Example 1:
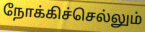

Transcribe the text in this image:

நோக்கிச்செல்லும்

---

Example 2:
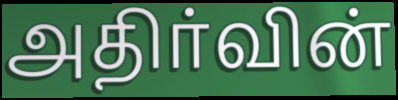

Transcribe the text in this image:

அதிர்வின்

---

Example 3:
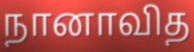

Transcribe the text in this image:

நானாவித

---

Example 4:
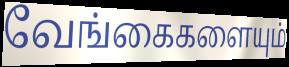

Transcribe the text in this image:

வேங்கைகளையும்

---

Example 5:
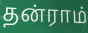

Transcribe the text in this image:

தன்ராம்